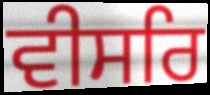
ਵੀਸਰਿ